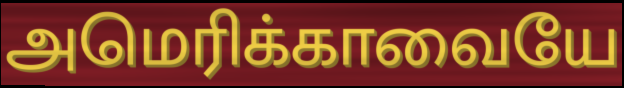
அமெரிக்காவையே